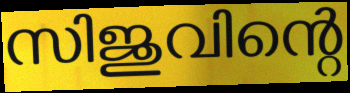
സിജുവിന്റെ